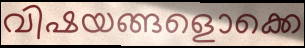
വിഷയങ്ങളൊക്കെ